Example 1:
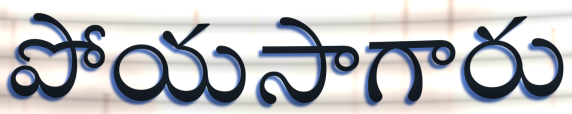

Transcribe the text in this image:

పోయసాగారు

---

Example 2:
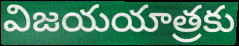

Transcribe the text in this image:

విజయయాత్రకు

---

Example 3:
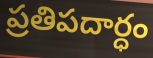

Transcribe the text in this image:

ప్రతిపదార్ధం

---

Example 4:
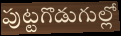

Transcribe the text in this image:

పుట్టగొడుగుల్లో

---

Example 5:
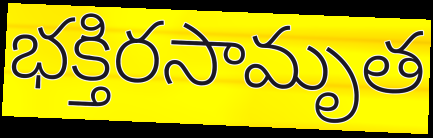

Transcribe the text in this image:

భక్తిరసామృత